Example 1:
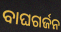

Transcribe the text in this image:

ବାଘଗର୍ଜନ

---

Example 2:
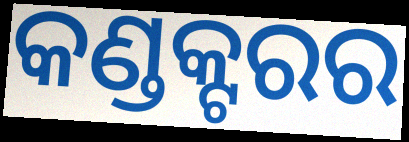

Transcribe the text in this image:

କଣ୍ଡକ୍ଟରର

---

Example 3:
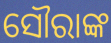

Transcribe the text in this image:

ସୌରାଙ୍କ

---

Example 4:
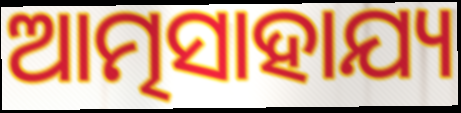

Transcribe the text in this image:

ଆତ୍ମସାହାଯ୍ୟ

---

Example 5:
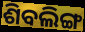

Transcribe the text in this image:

ଶିବଲିଙ୍ଗ